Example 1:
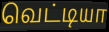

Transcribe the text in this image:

வெட்டியா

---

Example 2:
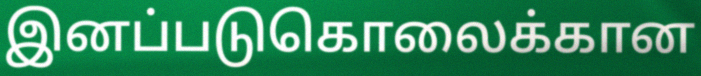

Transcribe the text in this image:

இனப்படுகொலைக்கான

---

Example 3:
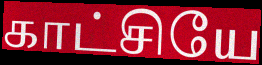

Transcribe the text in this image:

காட்சியே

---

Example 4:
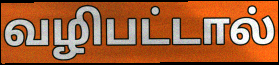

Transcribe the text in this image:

வழிபட்டால்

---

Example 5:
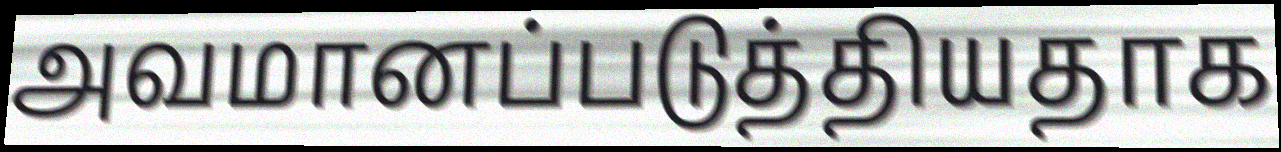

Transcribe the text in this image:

அவமானப்படுத்தியதாக